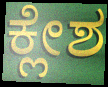
ಕ್ಲೇಶ